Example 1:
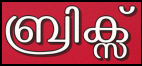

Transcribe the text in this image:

ബ്രിക്സ്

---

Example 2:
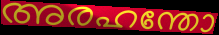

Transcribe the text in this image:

അരഹന്തോ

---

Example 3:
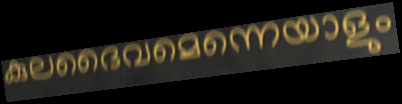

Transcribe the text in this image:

കുലദൈവമെന്നെയാളും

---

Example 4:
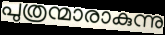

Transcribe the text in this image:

പുത്രന്മാരാകുന്നു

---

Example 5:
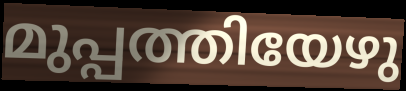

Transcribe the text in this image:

മുപ്പത്തിയേഴു